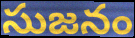
సుజనం